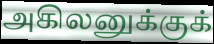
அகிலனுக்குக்